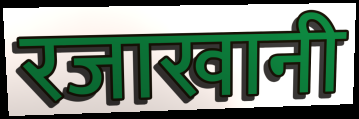
रजाखानी